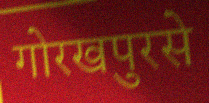
गोरखपुरसे